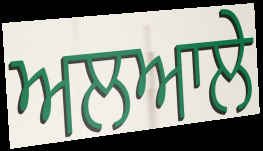
ਅਲਆਲੇ